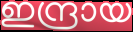
ഇന്ദ്രായ